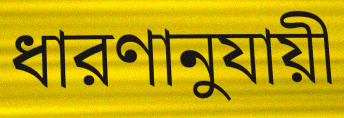
ধারণানুযায়ী